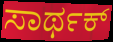
ಸಾರ್ಥಕ್